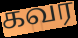
கவர